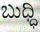
ಬುಧ್ಧಿ